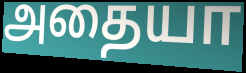
அதையா